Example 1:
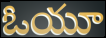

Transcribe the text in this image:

ఓయూ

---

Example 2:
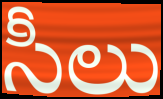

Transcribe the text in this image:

సీలు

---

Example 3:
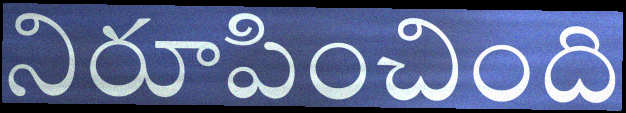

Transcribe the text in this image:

నిరూపించింది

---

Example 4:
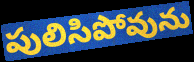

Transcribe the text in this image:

పులిసిపోవును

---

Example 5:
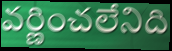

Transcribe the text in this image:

వర్ణించలేనిది